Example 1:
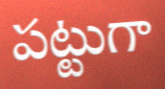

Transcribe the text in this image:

పట్టుగా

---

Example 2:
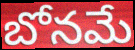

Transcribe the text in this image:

బోనమే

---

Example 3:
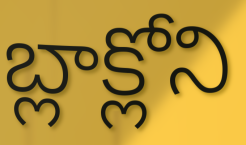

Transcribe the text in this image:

బ్లాక్లోని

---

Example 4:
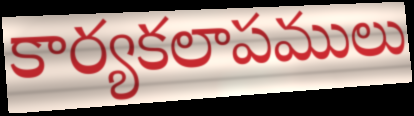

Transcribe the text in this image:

కార్యకలాపములు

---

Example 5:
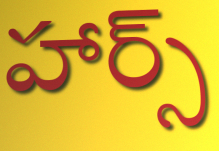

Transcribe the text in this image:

హార్స్